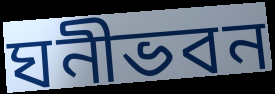
ঘনীভবন